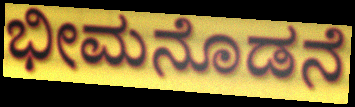
ಭೀಮನೊಡನೆ